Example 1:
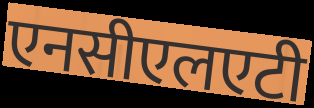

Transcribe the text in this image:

एनसीएलएटी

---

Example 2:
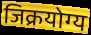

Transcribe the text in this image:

जिक्रयोग्य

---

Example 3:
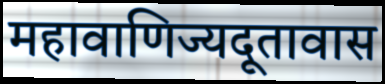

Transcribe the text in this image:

महावाणिज्यदूतावास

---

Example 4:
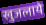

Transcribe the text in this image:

खुजलाये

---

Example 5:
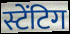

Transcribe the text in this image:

स्टेंटिग